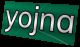
yojna